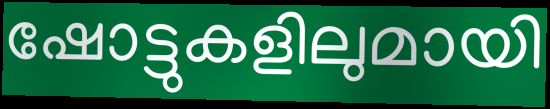
ഷോട്ടുകളിലുമായി